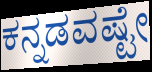
ಕನ್ನಡವಷ್ಟೇ